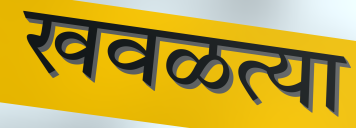
खवळत्या